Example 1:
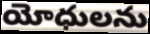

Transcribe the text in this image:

యోధులను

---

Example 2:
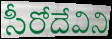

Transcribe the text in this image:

సీరోదేవిని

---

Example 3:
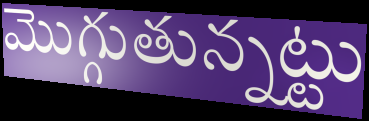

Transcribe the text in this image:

మొగ్గుతున్నట్టు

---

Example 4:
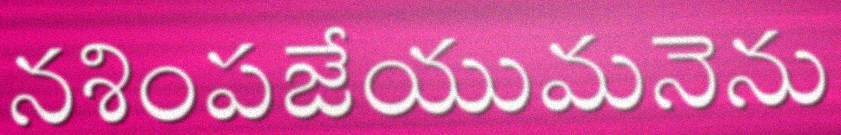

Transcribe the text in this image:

నశింపజేయుమనెను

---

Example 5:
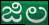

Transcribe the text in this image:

జిల